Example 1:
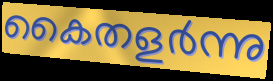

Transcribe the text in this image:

കൈതളർന്നു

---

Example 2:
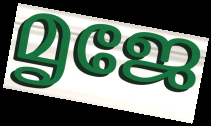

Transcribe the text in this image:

മൃജേ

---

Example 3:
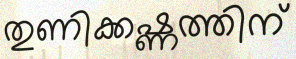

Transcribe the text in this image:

തുണിക്കഷ്ണത്തിന്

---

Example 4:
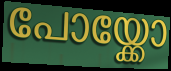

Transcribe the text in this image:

പോയ്ക്കോ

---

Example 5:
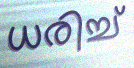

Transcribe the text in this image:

ധരിച്ച്